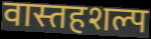
वास्तहशल्प